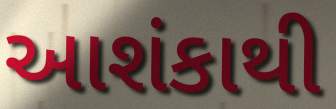
આશંકાથી